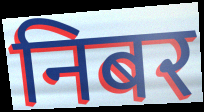
निबर